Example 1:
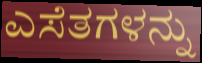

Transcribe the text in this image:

ಎಸೆತಗಳನ್ನು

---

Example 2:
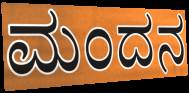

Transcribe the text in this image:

ಮಂದನ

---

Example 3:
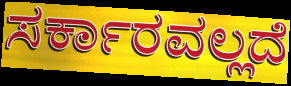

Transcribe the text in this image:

ಸರ್ಕಾರವಲ್ಲದೆ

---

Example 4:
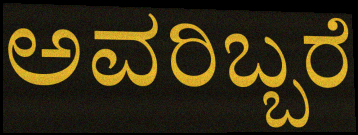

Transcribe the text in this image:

ಅವರಿಬ್ಬರೆ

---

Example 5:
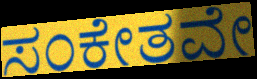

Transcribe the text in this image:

ಸಂಕೇತವೇ